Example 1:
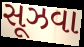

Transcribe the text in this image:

સૂઝવા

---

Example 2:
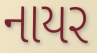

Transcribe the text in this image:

નાયર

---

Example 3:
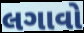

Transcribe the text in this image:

લગાવો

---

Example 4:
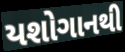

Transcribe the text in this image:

યશોગાનથી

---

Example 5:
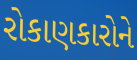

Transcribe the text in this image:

રોકાણકારોને